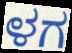
ಳಗ